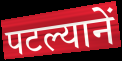
पटल्यानें